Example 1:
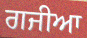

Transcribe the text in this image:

ਗਜੀਆ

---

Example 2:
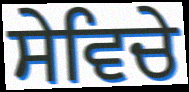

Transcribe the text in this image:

ਸੇਵਿਚੇ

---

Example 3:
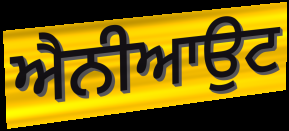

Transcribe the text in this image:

ਐਨੀਆਉਟ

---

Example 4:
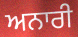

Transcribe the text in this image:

ਅਨਾਰੀ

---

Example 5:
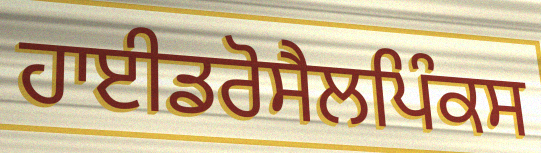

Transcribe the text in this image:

ਹਾਈਡਰੋਸੈਲਪਿੰਕਸ